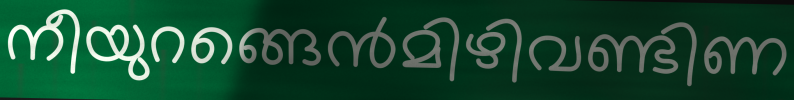
നീയുറങ്ങെൻമിഴിവണ്ടിണ